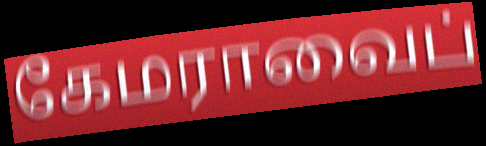
கேமராவைப்